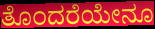
ತೊಂದರೆಯೇನೂ